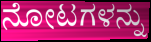
ನೋಟಗಳನ್ನು